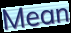
Mean